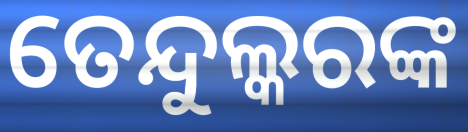
ତେନ୍ଦୁଲ୍କରଙ୍କ